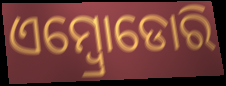
ଏମ୍ବ୍ରୋଡୋରି